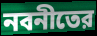
নবনীতের